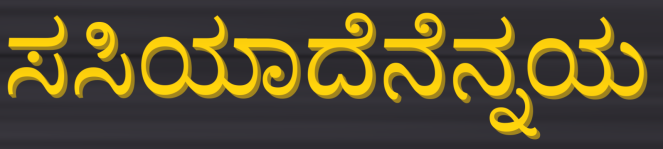
ಸಸಿಯಾದೆನೆನ್ನಯ